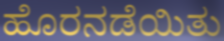
ಹೊರನಡೆಯಿತು